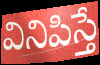
వినిపిస్తే